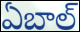
ఏబాల్